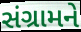
સંગ્રામને